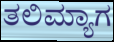
ತಲಿಮ್ಯಾಗ